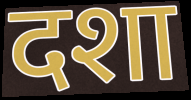
दशा